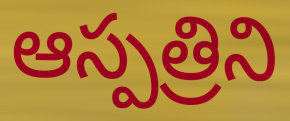
ఆస్పత్రిని